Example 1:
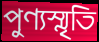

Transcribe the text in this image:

পুণ্যস্মৃতি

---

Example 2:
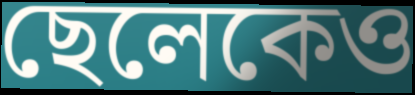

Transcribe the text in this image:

ছেলেকেও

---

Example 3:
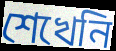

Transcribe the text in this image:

শেখেনি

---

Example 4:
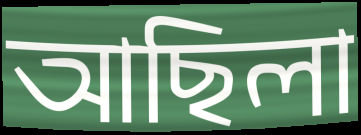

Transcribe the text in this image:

আছিলা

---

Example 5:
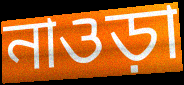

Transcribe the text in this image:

নাওড়া